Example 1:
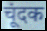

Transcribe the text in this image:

चूंदक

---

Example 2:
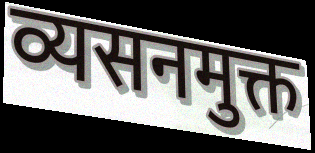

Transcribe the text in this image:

व्यसनमुक्त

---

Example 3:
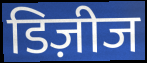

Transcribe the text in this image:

डिज़ीज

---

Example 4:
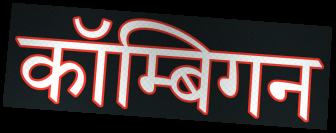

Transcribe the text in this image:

कॉम्बिगन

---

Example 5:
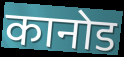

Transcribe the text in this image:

कानोड